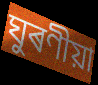
ঘুৰণীয়া